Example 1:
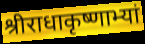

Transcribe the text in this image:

श्रीराधाकृष्णाभ्यां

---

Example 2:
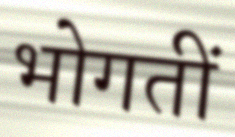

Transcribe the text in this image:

भोगतीं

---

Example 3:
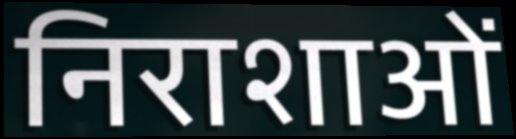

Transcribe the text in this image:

निराशाओं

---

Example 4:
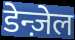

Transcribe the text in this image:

डेन्ज़ेल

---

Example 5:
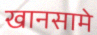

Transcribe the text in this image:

खानसामे